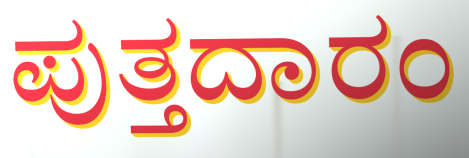
ಪುತ್ತದಾರಂ